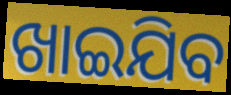
ଖାଇଯିବ